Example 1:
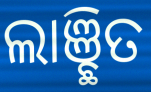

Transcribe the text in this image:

ଲାଞ୍ଛିତ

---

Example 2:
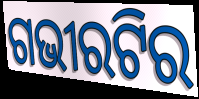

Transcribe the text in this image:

ଗଭୀରଟିର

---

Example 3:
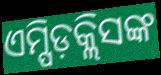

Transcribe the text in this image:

ଏମ୍ପିଡ଼କ୍ଲିସଙ୍କ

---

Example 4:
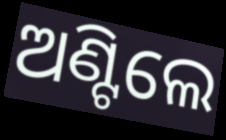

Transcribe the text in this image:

ଅଣ୍ଟିଲେ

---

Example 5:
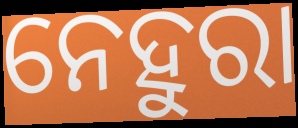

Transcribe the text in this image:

ନେହୁରା